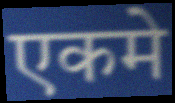
एकमे